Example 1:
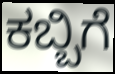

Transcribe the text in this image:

ಕಬ್ಬಿಗೆ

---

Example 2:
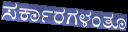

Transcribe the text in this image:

ಸರ್ಕಾರಗಳಂತೂ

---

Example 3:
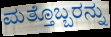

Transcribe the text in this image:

ಮತ್ತೊಬ್ಬರನ್ನು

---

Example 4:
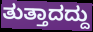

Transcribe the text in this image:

ತುತ್ತಾದದ್ದು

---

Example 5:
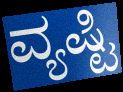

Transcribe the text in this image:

ವ್ಯಷ್ಟಿ